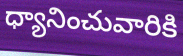
ధ్యానించువారికి